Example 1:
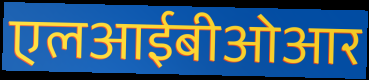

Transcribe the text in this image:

एलआईबीओआर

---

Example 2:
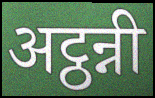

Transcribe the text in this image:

अट्ठन्नी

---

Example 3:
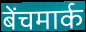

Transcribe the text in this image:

बेंचमार्क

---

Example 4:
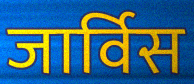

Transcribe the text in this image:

जार्विस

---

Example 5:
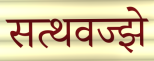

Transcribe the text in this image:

सत्थवज्झे